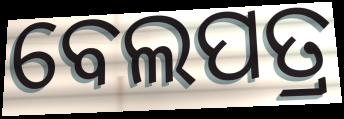
ବେଲପତ୍ର